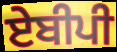
ਏਬੀਪੀ